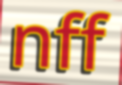
nff